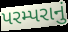
પરમ્પરાનું